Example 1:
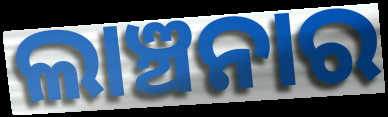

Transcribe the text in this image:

ଲାଞ୍ଚନାର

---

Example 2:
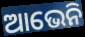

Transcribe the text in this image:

ଆଭେନି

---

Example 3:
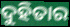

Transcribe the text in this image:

ଦୁହିତାର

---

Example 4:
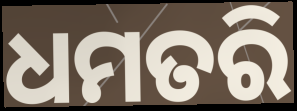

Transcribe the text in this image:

ଧମତରି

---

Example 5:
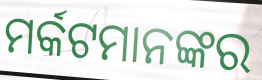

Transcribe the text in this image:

ମର୍କଟମାନଙ୍କର